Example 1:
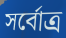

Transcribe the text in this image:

সর্বোত্র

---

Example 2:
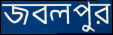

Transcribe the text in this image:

জবলপুর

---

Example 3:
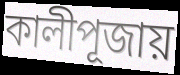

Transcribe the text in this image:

কালীপূজায়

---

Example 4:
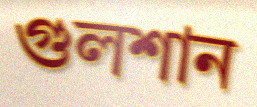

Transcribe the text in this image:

গুলশান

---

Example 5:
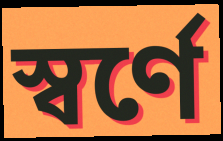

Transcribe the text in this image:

স্বর্ণে